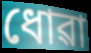
ধোৱা